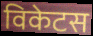
विकेटस